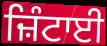
ਜ਼ਿੰਟਾਈ